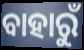
ବାହାରୁଁ